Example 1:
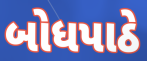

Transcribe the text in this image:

બોધપાઠે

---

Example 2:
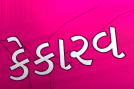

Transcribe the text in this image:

કેકારવ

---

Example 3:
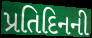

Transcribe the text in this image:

પ્રતિદિનની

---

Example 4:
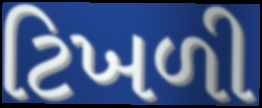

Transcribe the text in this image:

ટિખળી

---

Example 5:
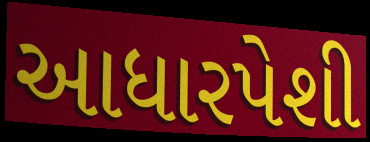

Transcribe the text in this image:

આધારપેશી